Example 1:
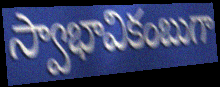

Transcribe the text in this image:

స్వాభావికంబుగా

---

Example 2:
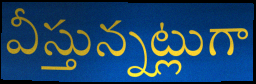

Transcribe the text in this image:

వీస్తున్నట్లుగా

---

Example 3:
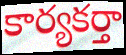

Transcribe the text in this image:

కార్యకర్తా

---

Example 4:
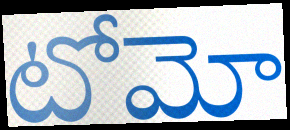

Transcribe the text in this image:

టోమో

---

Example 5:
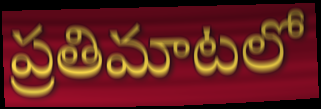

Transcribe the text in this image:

ప్రతిమాటలో